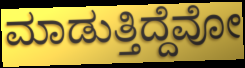
ಮಾಡುತ್ತಿದ್ದೆವೋ